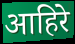
आहिरे